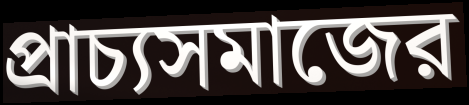
প্রাচ্যসমাজের